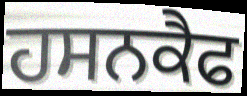
ਹਸਨਕੈਫ